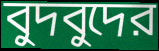
বুদবুদের